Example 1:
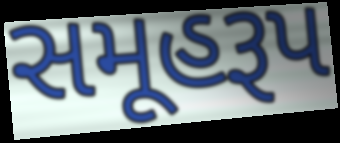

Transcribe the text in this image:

સમૂહરૂપ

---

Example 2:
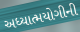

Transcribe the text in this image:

અધ્યાત્મયોગીની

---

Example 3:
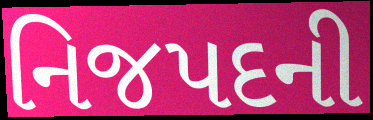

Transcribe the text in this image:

નિજપદની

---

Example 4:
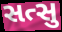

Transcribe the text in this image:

સત્સુ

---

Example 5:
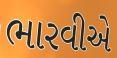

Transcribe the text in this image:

ભારવીએ